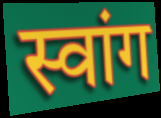
स्‍वांग